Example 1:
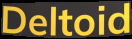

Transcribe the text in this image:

Deltoid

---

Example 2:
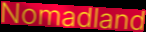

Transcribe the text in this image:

Nomadland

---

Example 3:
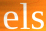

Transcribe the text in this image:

els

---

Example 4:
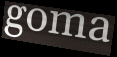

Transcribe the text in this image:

goma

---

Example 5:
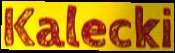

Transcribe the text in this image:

Kalecki